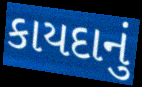
કાયદાનું